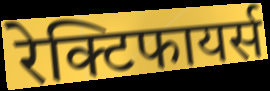
रेक्टिफायर्स